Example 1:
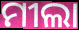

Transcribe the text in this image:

ମୀଲା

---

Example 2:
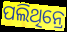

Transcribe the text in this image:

ପଲିଥିନ୍ରେ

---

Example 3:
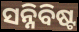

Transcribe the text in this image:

ସନ୍ନିବିଷ୍ଟ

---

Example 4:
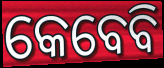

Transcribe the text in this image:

କେବେବି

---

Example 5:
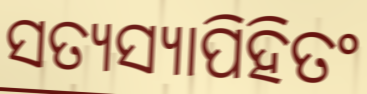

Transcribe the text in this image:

ସତ୍ୟସ୍ୟାପିହିତଂ